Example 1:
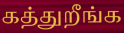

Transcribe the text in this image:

கத்துறீங்க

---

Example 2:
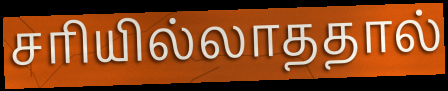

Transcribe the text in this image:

சரியில்லாததால்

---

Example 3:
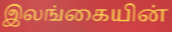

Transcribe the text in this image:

இலங்கையின்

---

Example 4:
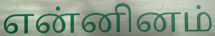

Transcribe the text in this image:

என்னினம்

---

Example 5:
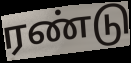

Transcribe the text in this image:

ரண்டு